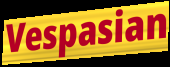
Vespasian